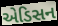
એડિસન